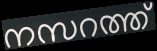
നസറത്ത്